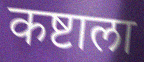
कष्टाला